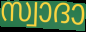
സ്വാദാ